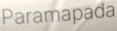
Paramapada